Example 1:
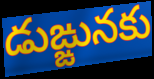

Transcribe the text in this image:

డుఙ్ఙునకు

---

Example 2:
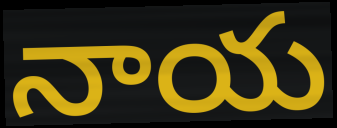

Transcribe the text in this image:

నాయ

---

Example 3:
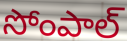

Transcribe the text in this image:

సోంపాల్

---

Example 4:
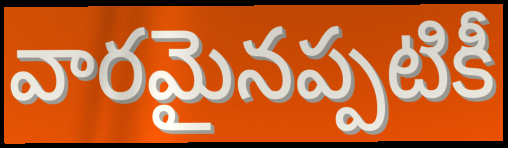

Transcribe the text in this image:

వారమైనప్పటికీ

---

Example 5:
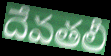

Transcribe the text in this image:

దేవతలీ